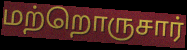
மற்றொருசார்